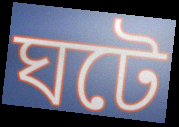
ঘটে